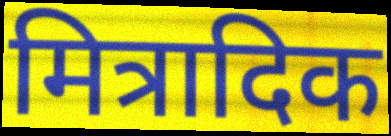
मित्रादिक